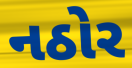
નઠોર